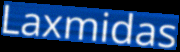
Laxmidas